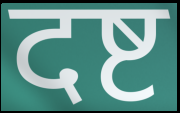
दष्ट